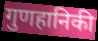
गुणहानिकी